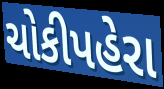
ચોકીપહેરા